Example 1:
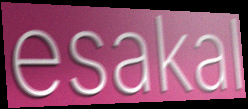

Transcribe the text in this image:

esakal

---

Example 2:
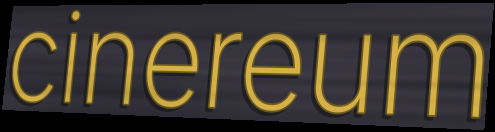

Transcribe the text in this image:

cinereum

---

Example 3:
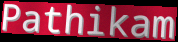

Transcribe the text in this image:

Pathikam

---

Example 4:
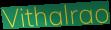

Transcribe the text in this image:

Vithalrao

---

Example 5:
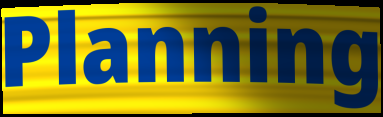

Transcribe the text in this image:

Planning